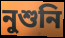
নুশুনি